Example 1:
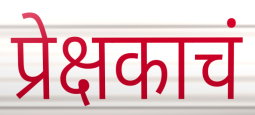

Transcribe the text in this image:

प्रेक्षकाचं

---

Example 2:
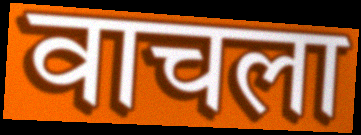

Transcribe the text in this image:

वाचला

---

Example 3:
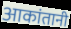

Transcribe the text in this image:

आकांतानी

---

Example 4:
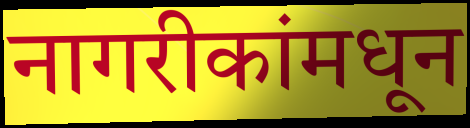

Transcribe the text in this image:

नागरीकांमधून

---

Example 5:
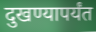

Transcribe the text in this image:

दुखण्यापर्यंत